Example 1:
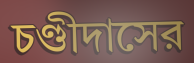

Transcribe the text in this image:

চণ্ডীদাসের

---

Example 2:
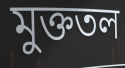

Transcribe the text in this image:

মুক্ততল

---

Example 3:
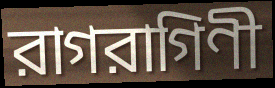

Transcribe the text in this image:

রাগরাগিণী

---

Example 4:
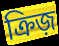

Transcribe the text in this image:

ক্রিজ়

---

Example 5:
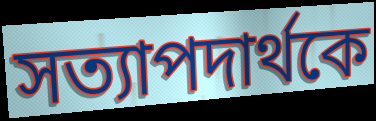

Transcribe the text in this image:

সত্যাপদার্থকে